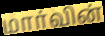
மார்வின்